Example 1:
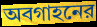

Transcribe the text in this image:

অবগাহনের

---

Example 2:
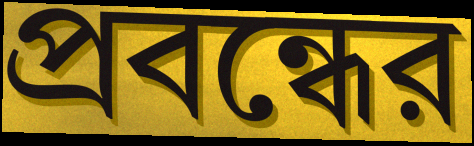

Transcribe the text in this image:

প্রবন্ধের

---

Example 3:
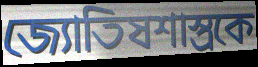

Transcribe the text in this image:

জ্যোতিষশাস্ত্রকে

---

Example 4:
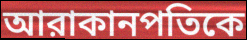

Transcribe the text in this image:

আরাকানপতিকে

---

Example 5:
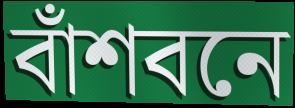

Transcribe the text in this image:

বাঁশবনে